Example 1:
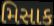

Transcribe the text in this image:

મિસાક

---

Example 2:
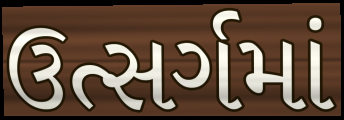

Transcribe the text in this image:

ઉત્સર્ગમાં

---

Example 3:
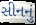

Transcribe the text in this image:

સીનનું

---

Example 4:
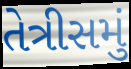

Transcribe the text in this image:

તેત્રીસમું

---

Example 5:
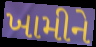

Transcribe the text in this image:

ખામીને